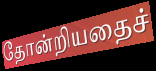
தோன்றியதைச்